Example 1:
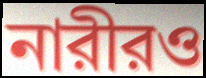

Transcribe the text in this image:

নারীরও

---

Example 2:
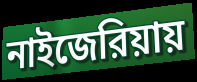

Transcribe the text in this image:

নাইজেরিয়ায়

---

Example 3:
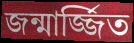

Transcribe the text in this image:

জন্মার্জ্জিত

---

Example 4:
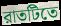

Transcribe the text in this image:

রাতটিতে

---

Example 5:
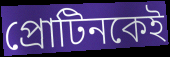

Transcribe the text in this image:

প্রোটিনকেই